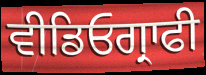
ਵੀਡਿਓਗ੍ਰਾਫੀ